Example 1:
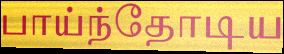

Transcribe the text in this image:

பாய்ந்தோடிய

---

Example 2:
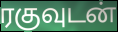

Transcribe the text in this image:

ரகுவுடன்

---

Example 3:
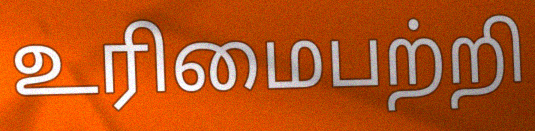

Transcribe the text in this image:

உரிமைபற்றி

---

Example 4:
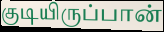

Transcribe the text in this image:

குடியிருப்பான்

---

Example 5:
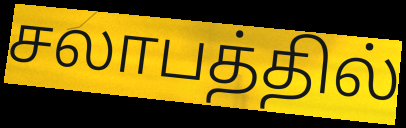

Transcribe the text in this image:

சலாபத்தில்